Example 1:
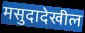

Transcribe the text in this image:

मसुदादेखील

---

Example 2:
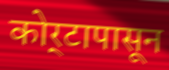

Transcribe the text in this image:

कोर्टापासून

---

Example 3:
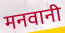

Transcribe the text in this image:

मनवानी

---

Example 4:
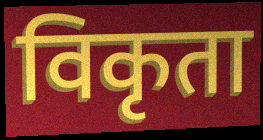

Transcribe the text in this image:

विकृता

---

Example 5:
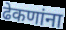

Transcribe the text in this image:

ढेकणांना